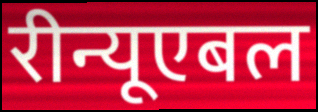
रीन्यूएबल